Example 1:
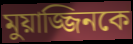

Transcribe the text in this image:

মুয়াজ্জিনকে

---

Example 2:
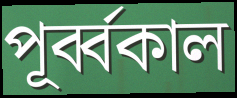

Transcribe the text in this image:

পূর্ব্বকাল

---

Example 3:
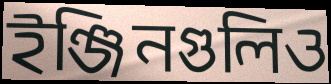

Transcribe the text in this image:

ইঞ্জিনগুলিও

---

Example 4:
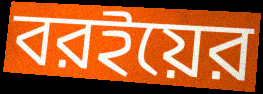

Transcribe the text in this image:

বরইয়ের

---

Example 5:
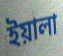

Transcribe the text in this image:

ইয়ালা